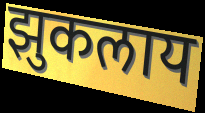
झुकलाय